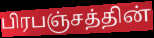
பிரபஞ்சத்தின்